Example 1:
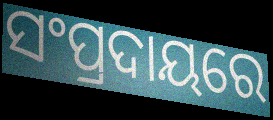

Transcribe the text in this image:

ସଂପ୍ରଦାୟରେ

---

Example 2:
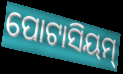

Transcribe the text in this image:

ପୋଟାସିୟମ୍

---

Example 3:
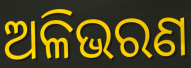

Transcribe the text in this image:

ଅଳିଭରଣ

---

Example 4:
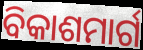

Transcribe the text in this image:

ବିକାଶମାର୍ଗ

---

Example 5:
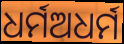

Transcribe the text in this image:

ଧର୍ମଅଧର୍ମ